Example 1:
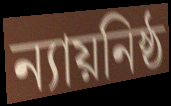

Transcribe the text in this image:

ন্যায়নিষ্ঠ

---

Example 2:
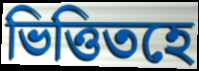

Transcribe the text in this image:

ভিত্তিতহে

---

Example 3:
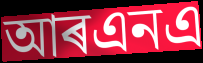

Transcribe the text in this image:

আৰএনএ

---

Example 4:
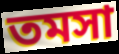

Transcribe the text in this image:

তমসা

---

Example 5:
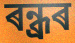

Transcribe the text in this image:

ৰন্ধ্ৰৰ